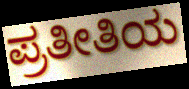
ಪ್ರತೀತಿಯ